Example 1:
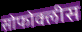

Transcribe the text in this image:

सोफोक्लीस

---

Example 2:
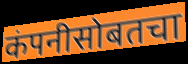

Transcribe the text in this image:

कंपनीसोबतचा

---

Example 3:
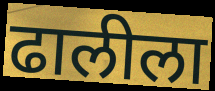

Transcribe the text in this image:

ढालीला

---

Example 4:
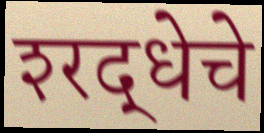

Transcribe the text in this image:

श्रद्धेचे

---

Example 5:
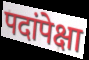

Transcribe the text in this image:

पदांपेक्षा